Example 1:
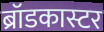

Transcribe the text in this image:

ब्रॉडकास्टर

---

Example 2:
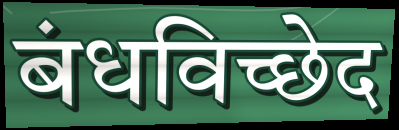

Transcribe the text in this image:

बंधविच्छेद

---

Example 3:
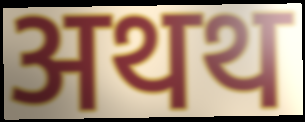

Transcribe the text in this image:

अथथ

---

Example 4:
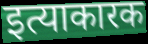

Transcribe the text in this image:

इत्याकारक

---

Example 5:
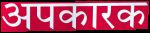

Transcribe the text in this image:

अपकारक